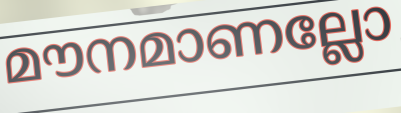
മൗനമാണല്ലോ